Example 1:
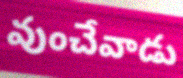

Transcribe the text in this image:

వుంచేవాడు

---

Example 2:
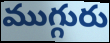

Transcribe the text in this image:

ముగ్గురు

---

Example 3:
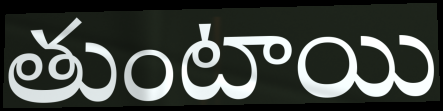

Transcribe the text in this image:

తుంటాయి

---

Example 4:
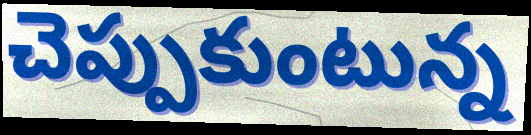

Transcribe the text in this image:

చెప్పుకుంటున్న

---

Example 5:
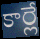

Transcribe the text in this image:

కార్లే